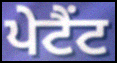
ਪੇਟੈਂਟ